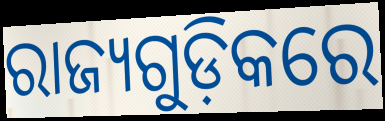
ରାଜ୍ୟଗୁଡ଼ିକରେ